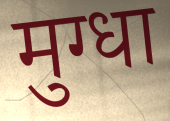
मुग्धा